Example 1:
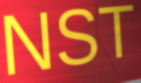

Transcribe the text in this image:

NST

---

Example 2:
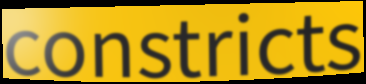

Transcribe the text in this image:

constricts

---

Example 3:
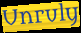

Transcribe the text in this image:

Unruly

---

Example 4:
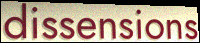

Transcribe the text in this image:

dissensions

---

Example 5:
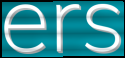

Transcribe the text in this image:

ers